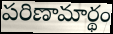
పరిణామార్థం